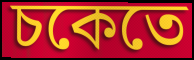
চকেতে